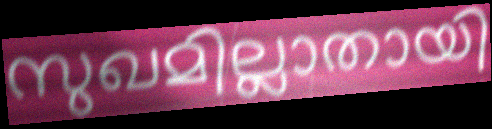
സുഖമില്ലാതായി